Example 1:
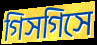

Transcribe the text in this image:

গিসগিসে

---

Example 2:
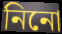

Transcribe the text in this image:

নিনো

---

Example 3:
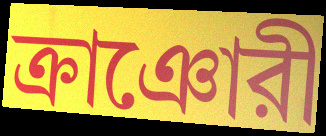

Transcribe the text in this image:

ক্রাঞোরী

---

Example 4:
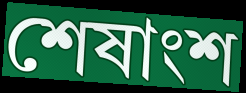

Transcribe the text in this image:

শেষাংশ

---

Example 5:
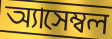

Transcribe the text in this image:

অ্যাসেম্বল